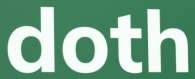
doth